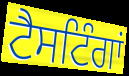
ਟੈਸਟਿੰਗਾਂ